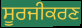
ਸੂਰਜੀਕਰਣ